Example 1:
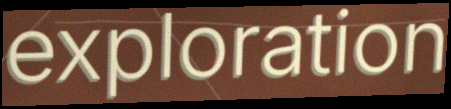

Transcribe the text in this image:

exploration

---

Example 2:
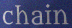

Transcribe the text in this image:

chain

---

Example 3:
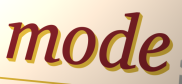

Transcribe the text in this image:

mode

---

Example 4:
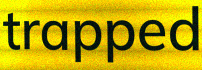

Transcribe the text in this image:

trapped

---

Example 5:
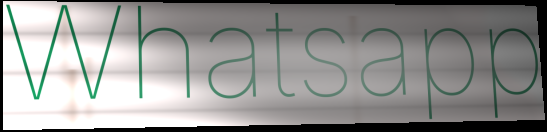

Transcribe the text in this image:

Whatsapp